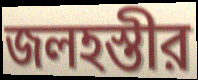
জলহস্তীর